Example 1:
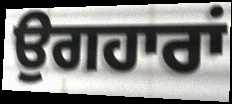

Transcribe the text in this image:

ਉਗਹਾਰਾਂ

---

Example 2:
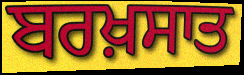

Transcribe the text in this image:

ਬਰਖ਼ਸਾਤ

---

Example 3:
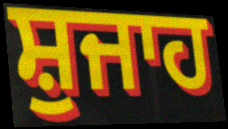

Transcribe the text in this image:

ਸ਼ੁਜਾਹ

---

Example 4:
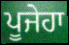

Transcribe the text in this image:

ਪੂਜੇਹਾ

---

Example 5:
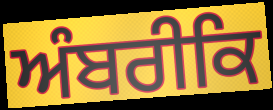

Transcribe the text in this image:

ਅੰਬਰੀਕਿ